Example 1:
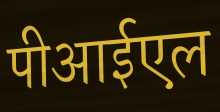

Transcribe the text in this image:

पीआईएल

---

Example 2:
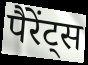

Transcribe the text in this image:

पैरेंट्स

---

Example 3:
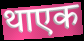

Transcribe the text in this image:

थाएक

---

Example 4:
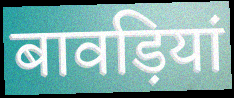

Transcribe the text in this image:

बावड़ियां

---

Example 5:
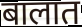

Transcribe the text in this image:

बालात